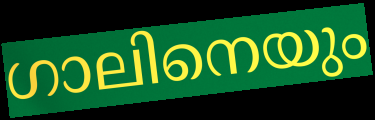
ഗാലിനെയും